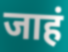
जाहं